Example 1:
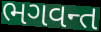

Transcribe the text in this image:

ભગવન્ત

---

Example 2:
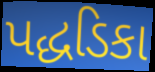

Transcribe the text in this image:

પદ્ધડિકા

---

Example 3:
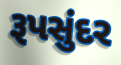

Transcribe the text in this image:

રૂપસુંદર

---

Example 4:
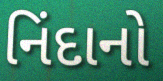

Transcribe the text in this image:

નિંદાનો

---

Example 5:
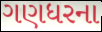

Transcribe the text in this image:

ગણધરના